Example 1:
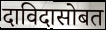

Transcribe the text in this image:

दाविदासोबत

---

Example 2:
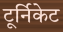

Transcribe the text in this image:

टूर्निकेट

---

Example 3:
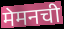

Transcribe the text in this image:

मेमनची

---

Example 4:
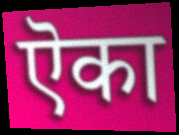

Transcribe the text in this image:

ऎका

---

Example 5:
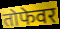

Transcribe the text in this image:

तोफेवर